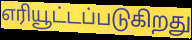
எரியூட்டப்படுகிறது